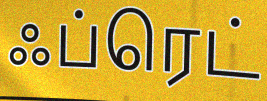
ஃப்ரெட்